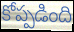
కోప్పడింది